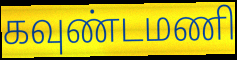
கவுண்டமணி